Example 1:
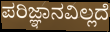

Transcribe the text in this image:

ಪರಿಜ್ಞಾನವಿಲ್ಲದೆ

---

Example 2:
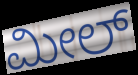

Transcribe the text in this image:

ಮೀಲ್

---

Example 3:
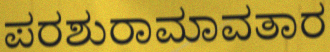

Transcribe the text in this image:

ಪರಶುರಾಮಾವತಾರ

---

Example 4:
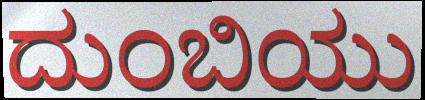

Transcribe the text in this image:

ದುಂಬಿಯು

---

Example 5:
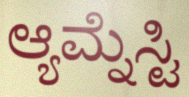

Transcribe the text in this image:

ಆ್ಯಮ್ನೆಸ್ಟಿ